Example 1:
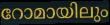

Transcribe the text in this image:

റോമായിലും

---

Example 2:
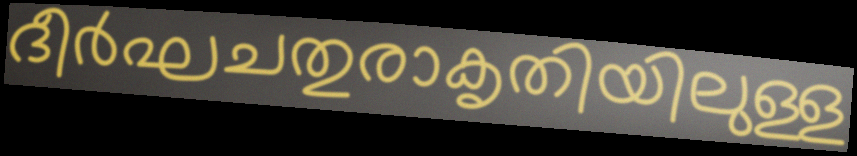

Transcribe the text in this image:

ദീർഘചതുരാകൃതിയിലുള്ള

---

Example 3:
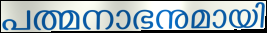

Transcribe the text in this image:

പത്മനാഭനുമായി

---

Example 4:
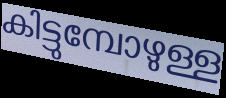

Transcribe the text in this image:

കിട്ടുമ്പോഴുള്ള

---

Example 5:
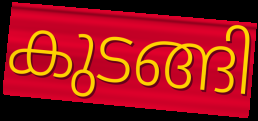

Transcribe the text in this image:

കുടങ്ങി